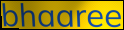
bhaaree